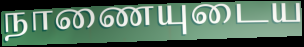
நாணையுடைய